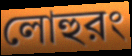
লোহুরং